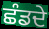
ਛੰਡਦੇ